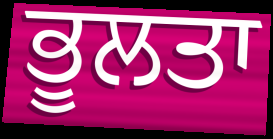
ਭੂਲਤਾ